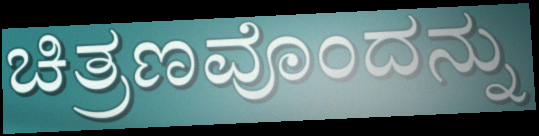
ಚಿತ್ರಣವೊಂದನ್ನು